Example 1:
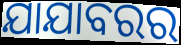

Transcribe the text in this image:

ଯାଯାବରର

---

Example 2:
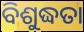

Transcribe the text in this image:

ବିଶୁଦ୍ଧତା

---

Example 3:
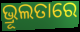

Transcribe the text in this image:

ଭ୍ରୂଲତାରେ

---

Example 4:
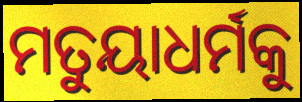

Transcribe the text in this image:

ମତୁୟାଧର୍ମକୁ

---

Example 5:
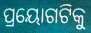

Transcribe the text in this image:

ପ୍ରୟୋଗଟିକୁ